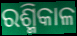
ରଶ୍ମିକାଳ